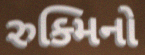
રુક્મિનો